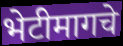
भेटीमागचे